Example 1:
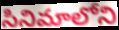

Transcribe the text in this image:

సినిమాలోని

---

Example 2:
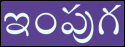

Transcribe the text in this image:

ఇంపుగ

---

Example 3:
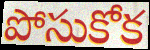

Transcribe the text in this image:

పోసుకోక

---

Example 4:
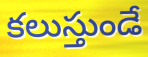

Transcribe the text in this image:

కలుస్తుండే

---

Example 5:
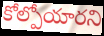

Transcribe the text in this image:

కోల్పోయారని